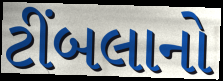
ટીંબલાનો